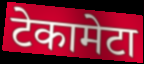
टेकामेटा